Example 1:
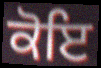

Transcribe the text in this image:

ਕੋਇ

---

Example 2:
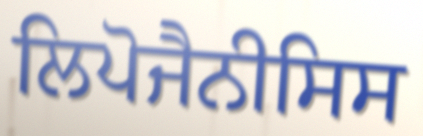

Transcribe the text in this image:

ਲਿਪੋਜੈਨੀਸਿਸ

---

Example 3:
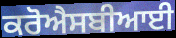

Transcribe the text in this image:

ਕਰੋਐਸਬੀਆਈ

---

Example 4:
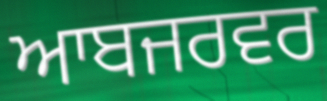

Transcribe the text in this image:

ਆਬਜਰਵਰ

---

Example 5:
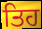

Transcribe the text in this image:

ਤਿਹ